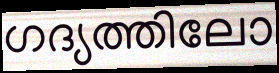
ഗദ്യത്തിലോ